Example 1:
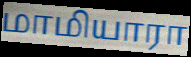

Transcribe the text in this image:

மாமியாரா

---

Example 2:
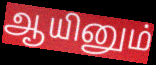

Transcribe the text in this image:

ஆயினும்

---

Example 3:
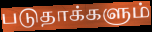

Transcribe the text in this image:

படுதாக்களும்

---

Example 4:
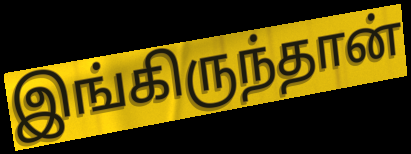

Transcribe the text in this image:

இங்கிருந்தான்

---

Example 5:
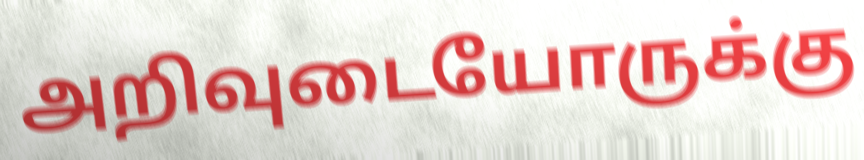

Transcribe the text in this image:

அறிவுடையோருக்கு